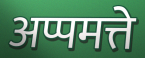
अप्पमत्ते